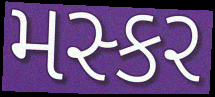
મસ્કર